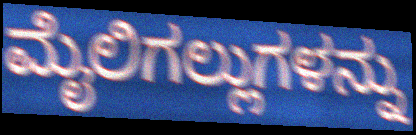
ಮೈಲಿಗಲ್ಲುಗಳನ್ನು